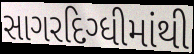
સાગરદિગ્ધીમાંથી